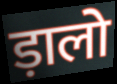
ड़ालो